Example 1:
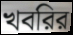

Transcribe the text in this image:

খবরির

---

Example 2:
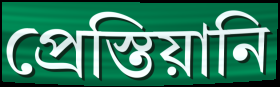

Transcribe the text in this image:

প্রেস্তিয়ানি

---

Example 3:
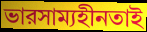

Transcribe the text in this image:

ভারসাম্যহীনতাই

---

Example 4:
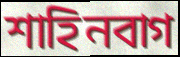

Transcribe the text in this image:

শাহিনবাগ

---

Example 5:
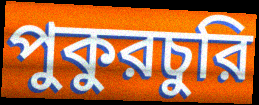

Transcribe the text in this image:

পুকুরচুরি